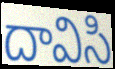
దావిసి